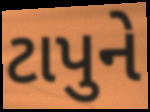
ટાપુને